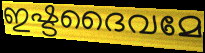
ഇഷ്ടദൈവമേ